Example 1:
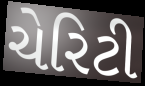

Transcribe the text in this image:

ચેરિટી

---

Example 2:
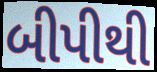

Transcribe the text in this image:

બીપીથી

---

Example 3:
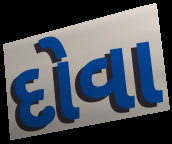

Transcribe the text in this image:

દોવા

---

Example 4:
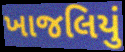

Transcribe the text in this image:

ખાજલિયું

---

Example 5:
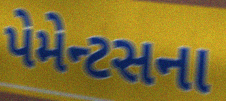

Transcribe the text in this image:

પેમેન્ટસના